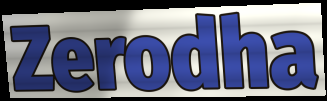
Zerodha